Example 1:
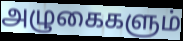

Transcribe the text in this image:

அழுகைகளும்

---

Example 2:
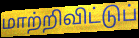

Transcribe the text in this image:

மாற்றிவிட்டுப்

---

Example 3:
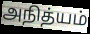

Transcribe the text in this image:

அநித்யம்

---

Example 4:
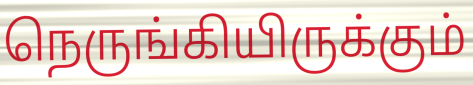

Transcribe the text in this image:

நெருங்கியிருக்கும்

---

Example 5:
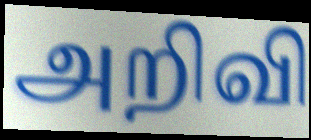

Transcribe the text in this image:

அறிவி